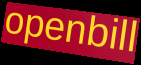
openbill